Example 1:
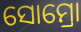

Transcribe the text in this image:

ସୋମ୍ରୋ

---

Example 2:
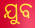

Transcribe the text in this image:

ଯୁବ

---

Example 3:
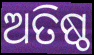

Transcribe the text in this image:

ଅତିଷ୍ଠ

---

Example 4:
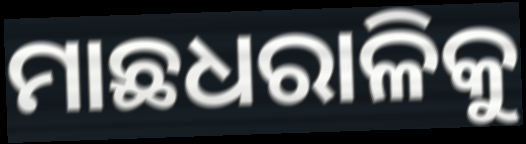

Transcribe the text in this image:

ମାଛଧରାଳିକୁ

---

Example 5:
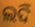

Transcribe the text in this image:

ଲଦି